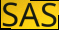
SAS